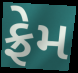
ફ્રેમ